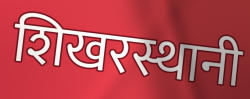
शिखरस्थानी